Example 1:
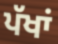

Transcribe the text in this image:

ਪੱਖਾਂ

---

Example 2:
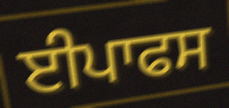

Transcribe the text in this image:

ਈਪਾਫਸ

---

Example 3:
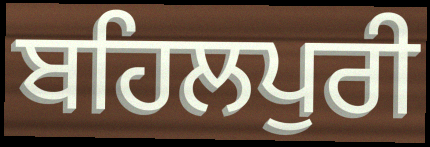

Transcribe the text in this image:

ਬਹਿਲਪੁਰੀ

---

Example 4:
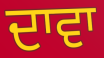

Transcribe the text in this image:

ਦਾਵਾ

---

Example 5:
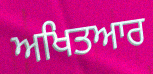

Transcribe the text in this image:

ਅਖਿਤਆਰ